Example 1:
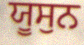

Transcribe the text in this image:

ਯੂਸੁਨ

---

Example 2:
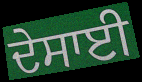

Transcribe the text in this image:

ਦੇਸਾਈ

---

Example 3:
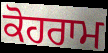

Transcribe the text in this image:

ਕੋਹਰਾਮ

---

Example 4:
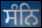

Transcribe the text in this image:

ਸੰਨਿ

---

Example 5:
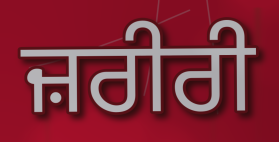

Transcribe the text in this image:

ਜ਼ਰੀਰੀ